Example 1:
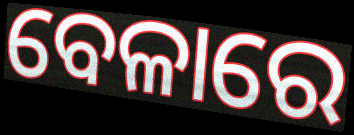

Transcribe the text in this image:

ବେଳାରେ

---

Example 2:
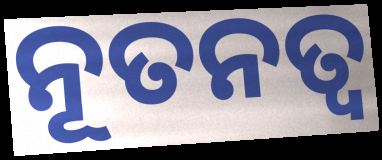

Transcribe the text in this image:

ନୂତନତ୍ୱ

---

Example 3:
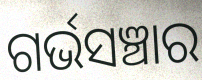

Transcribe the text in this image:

ଗର୍ଭସଞ୍ଚାର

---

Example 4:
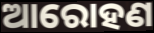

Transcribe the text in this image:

ଆରୋହଣ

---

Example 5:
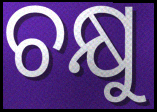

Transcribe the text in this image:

ଚକ୍ଷୁ